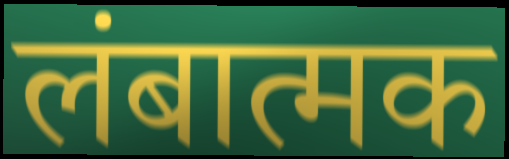
लंबात्मक